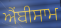
ਐਂਬੀਸਾਮ